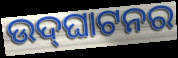
ଉଦ୍‍ଘାଟନର